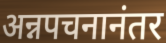
अन्नपचनानंतर